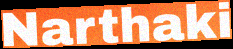
Narthaki